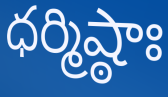
ధర్మిష్ఠాః